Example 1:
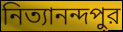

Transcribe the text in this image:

নিত্যানন্দপুর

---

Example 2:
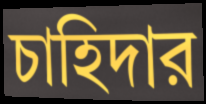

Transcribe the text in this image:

চাহিদার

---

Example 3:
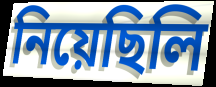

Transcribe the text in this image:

নিয়েছিলি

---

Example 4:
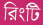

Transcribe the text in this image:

রিংটি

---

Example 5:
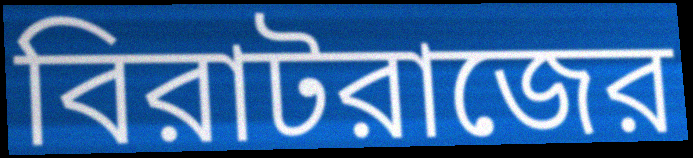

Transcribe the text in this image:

বিরাটরাজের